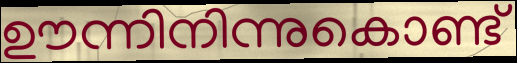
ഊന്നിനിന്നുകൊണ്ട്